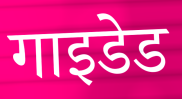
गाइडेड